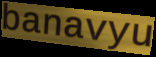
banavyu